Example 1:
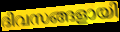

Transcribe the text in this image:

ദിവസങ്ങളായി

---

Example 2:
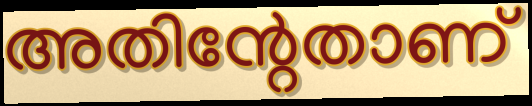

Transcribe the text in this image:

അതിന്റേതാണ്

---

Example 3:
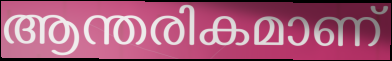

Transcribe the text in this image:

ആന്തരികമാണ്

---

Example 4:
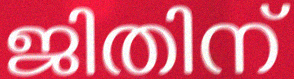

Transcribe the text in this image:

ജിതിന്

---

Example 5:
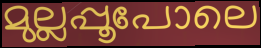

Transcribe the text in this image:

മുല്ലപ്പൂപോലെ